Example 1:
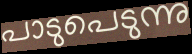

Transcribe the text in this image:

പാടുപെടുന്നു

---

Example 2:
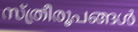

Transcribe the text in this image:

സ്ത്രീരൂപങ്ങൾ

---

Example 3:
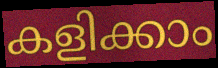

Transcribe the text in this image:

കളിക്കാം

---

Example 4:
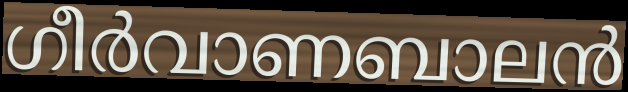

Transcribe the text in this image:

ഗീർവാണബാലൻ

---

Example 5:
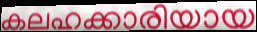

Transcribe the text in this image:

കലഹക്കാരിയായ